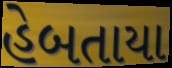
હેબતાયા